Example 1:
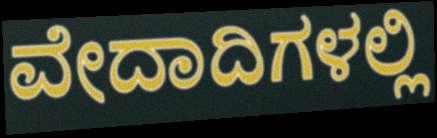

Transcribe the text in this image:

ವೇದಾದಿಗಳಲ್ಲಿ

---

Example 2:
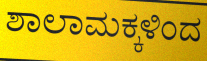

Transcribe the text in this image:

ಶಾಲಾಮಕ್ಕಳಿಂದ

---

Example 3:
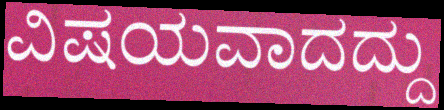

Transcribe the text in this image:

ವಿಷಯವಾದದ್ದು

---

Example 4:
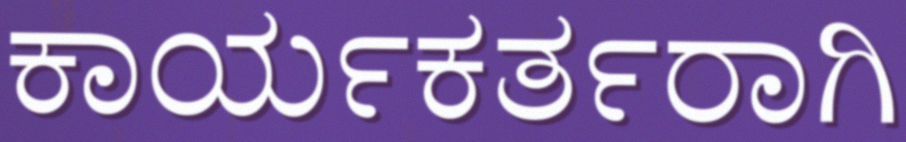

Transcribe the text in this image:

ಕಾರ್ಯಕರ್ತರಾಗಿ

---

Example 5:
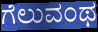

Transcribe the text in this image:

ಗೆಲುವಂಥ